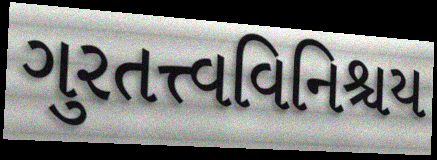
ગુરતત્ત્વવિનિશ્ચય